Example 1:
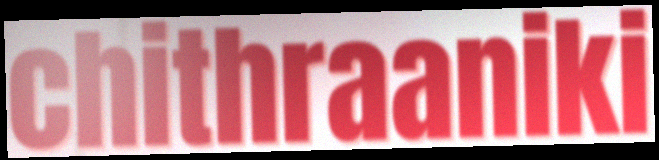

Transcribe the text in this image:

chithraaniki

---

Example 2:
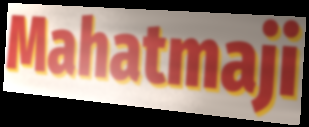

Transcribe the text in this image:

Mahatmaji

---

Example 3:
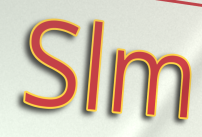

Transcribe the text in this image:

Slm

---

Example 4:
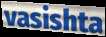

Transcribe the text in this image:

vasishta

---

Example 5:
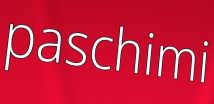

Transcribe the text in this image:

paschimi